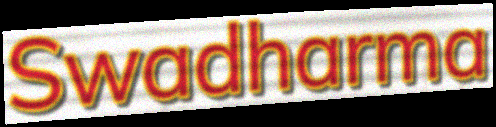
Swadharma